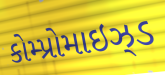
કોમ્પ્રોમાઇઝ્ડ